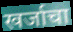
खर्जाचा